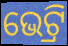
ଭେଟ୍ରି